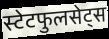
स्टेटफुलसेट्स